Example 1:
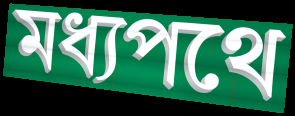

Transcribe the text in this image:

মধ্যপথে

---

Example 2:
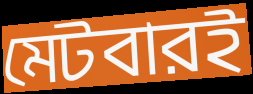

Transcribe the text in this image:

মেটবারই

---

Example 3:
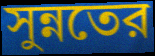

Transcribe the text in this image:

সুন্নতের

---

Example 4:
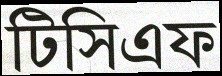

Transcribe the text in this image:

টিসিএফ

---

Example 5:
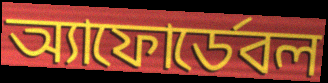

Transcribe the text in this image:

অ্যাফোর্ডেবল